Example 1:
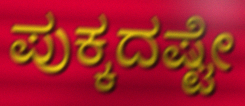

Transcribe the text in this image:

ಪುಕ್ಕದಷ್ಟೇ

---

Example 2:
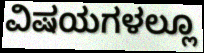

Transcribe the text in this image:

ವಿಷಯಗಳಲ್ಲೂ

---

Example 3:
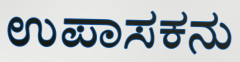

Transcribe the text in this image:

ಉಪಾಸಕನು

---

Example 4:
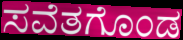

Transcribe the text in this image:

ಸವೆತಗೊಂಡ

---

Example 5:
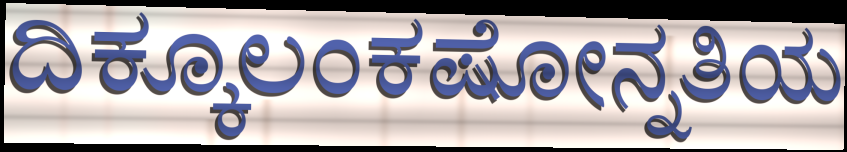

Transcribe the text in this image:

ದಿಕ್ಕೂಲಂಕಷೋನ್ನತಿಯ